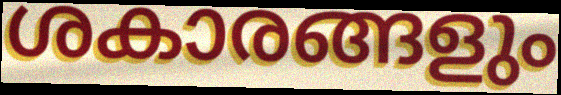
ശകാരങ്ങളും